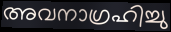
അവനാഗ്രഹിച്ചു